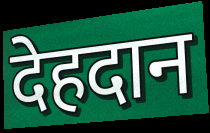
देहदान